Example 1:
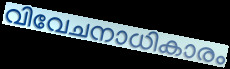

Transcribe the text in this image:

വിവേചനാധികാരം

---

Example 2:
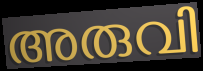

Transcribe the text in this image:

അരുവി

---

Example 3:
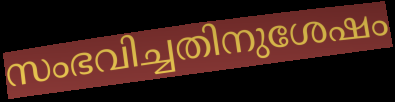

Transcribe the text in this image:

സംഭവിച്ചതിനുശേഷം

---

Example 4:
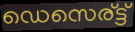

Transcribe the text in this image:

ഡെസെര്ട്ട്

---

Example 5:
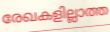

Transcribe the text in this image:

രേഖകളില്ലാത്ത